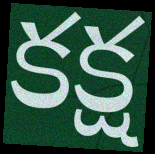
కక్ష